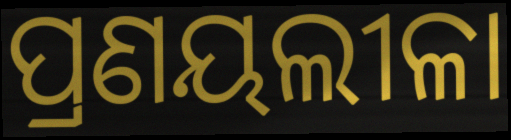
ପ୍ରଣୟଲୀଳା